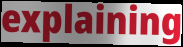
explaining